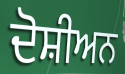
ਦੋਸ਼ੀਅਨ